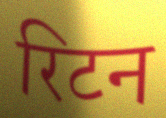
रिटन